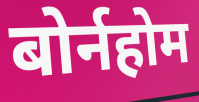
बोर्नहोम